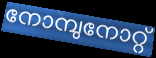
നോമ്പുനോറ്റ്